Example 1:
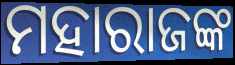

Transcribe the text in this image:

ମହାରାଜଙ୍କ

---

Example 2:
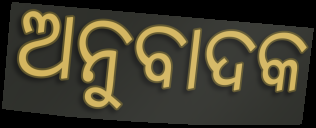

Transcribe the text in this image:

ଅନୁବାଦକ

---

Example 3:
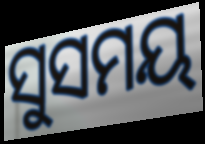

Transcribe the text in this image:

ସୁସମୟ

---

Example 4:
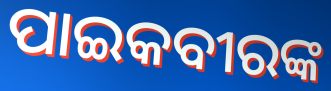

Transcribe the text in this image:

ପାଇକବୀରଙ୍କ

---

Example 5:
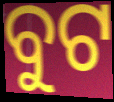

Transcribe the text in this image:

ବୁଟ